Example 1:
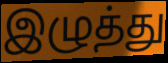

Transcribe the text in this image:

இழுத்து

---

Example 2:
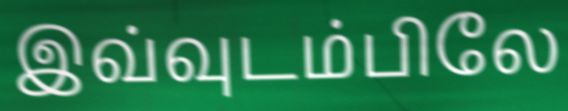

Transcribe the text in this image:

இவ்வுடம்பிலே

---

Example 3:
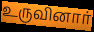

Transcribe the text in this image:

உருவினார்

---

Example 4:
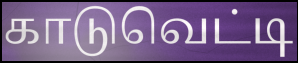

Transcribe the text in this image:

காடுவெட்டி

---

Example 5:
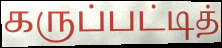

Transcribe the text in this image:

கருப்பட்டித்